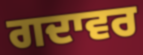
ਗਦਾਵਰ